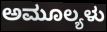
ಅಮೂಲ್ಯಳು